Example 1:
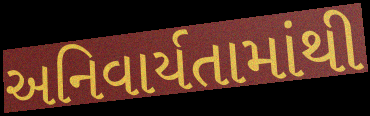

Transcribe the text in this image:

અનિવાર્યતામાંથી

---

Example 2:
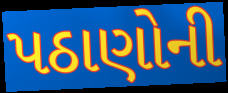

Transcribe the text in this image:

પઠાણોની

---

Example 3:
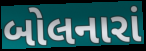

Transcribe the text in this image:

બોલનારાં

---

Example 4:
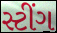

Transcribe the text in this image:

સ્ટીંગ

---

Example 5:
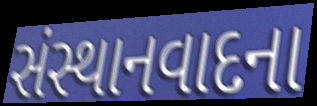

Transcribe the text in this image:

સંસ્થાનવાદના